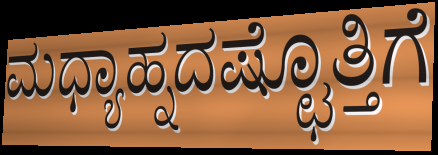
ಮಧ್ಯಾಹ್ನದಷ್ಟೊತ್ತಿಗೆ